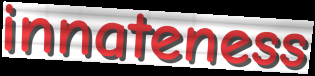
innateness